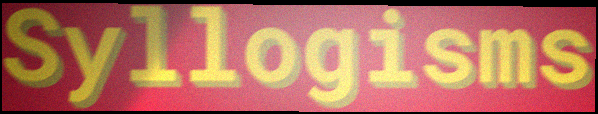
Syllogisms